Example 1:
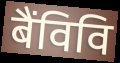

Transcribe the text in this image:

बैंविवि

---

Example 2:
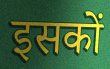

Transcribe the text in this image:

इसकों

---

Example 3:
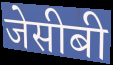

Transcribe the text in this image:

जेसीबी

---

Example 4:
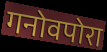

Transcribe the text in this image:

गनोवपोरा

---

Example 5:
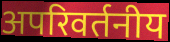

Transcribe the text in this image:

अपरिवर्तनीय